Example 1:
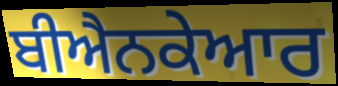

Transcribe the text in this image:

ਬੀਐਨਕੇਆਰ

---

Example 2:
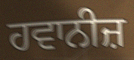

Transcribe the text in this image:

ਹਵਾਨੀਜ਼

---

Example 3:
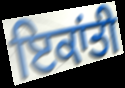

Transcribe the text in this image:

ਇਕਾਂਤੀ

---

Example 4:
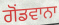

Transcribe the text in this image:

ਗੋਂਡਵਾਨਾ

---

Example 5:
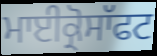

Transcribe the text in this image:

ਮਾਈਕ੍ਰੋਸਾੱਫਟ